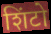
शिंटो